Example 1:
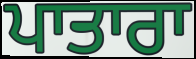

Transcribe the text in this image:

ਪਾਤਾਰਾ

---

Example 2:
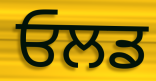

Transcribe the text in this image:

ਓਲਡ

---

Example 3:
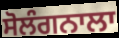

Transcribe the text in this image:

ਸੋਲੰਗਨਾਲਾ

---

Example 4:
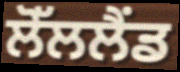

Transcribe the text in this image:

ਲੋੱਲਲੈਂਡ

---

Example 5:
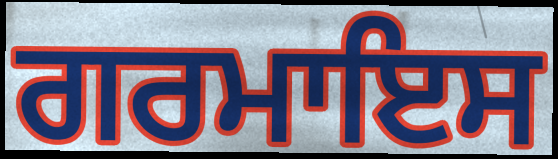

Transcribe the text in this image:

ਗਰਮਾਇਸ